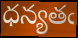
ధన్యతఁ